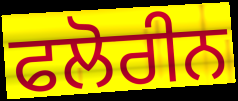
ਫਲੋਰੀਨ